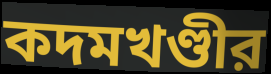
কদমখণ্ডীর